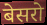
बेसरो